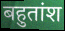
बहुतांश